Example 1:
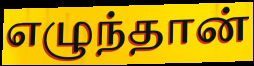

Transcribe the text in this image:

எழுந்தான்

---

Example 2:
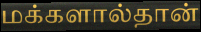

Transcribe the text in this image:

மக்களால்தான்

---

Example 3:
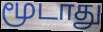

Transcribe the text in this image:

மூடாது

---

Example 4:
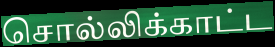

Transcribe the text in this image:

சொல்லிக்காட்ட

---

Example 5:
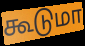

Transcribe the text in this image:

கூடுமா